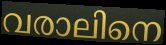
വരാലിനെ